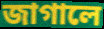
জাগালে